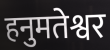
हनुमतेश्वर